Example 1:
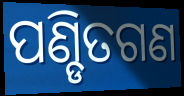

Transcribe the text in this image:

ପଣ୍ଡିତଗଣ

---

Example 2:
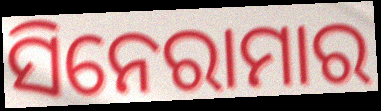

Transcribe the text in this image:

ସିନେରାମାର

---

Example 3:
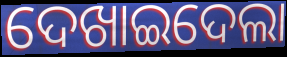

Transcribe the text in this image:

ଦେଖାଇଦେଲା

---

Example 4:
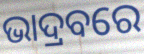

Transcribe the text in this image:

ଭାଦ୍ରବରେ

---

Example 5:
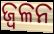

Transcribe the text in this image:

ଜ୍ୱଳନ